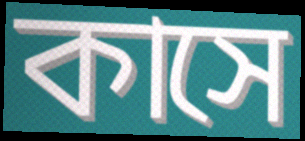
কাসে